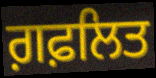
ਗ਼ਫ਼ਲਿਤ